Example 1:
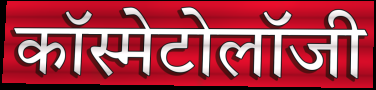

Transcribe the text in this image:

कॉस्मेटोलॉजी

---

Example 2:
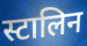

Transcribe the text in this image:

स्टालिन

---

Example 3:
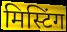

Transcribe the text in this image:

मिस्टिंग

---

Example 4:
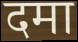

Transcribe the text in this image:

दमा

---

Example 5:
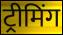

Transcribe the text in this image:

ट्रीमिंग